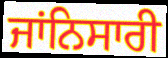
ਜਾਂਨਿਸਾਰੀ